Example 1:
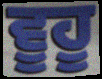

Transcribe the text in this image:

ਵੂਹੂ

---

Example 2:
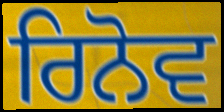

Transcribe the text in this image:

ਰਿਨੋਵ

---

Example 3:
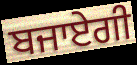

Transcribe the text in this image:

ਬਜਾਏਗੀ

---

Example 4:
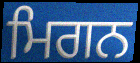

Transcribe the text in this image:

ਮਿਗਨ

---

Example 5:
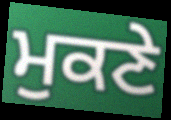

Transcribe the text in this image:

ਮੁਕਣੇ